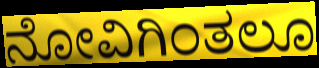
ನೋವಿಗಿಂತಲೂ